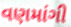
વણમાંગી